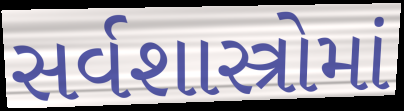
સર્વશાસ્ત્રોમાં